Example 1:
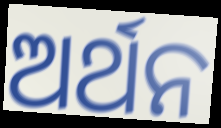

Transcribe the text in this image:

ଅର୍ଥନ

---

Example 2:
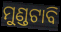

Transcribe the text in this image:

ମୁଣ୍ଡଟାବି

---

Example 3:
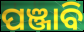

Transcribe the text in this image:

ପଞ୍ଜାବି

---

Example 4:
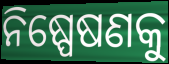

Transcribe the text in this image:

ନିଷ୍ପେଷଣକୁ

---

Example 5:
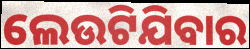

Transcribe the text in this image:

ଲେଉଟିଯିବାର